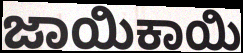
ಜಾಯಿಕಾಯಿ